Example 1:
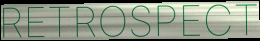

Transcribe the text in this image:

RETROSPECT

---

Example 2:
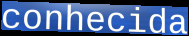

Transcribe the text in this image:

conhecida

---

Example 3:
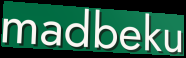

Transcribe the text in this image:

madbeku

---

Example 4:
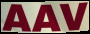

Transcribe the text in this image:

AAV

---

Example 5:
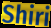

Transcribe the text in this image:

Shiri